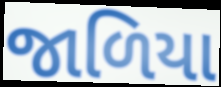
જાળિયા